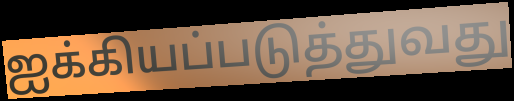
ஐக்கியப்படுத்துவது